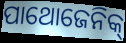
ପାଥୋଜେନିକ୍